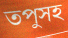
তপুসহ